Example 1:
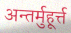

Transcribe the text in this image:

अन्तर्मुहूर्त्त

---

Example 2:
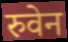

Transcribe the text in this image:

रुवेन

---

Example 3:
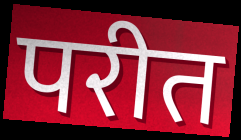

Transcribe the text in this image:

परीत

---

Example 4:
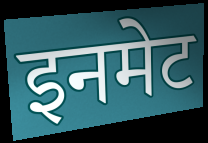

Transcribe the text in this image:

इनमेट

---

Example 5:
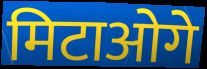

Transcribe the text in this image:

मिटाओगे